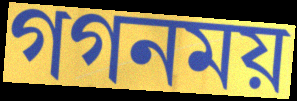
গগনময়